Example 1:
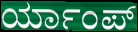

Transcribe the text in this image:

ರ್ಯಾಂಪ್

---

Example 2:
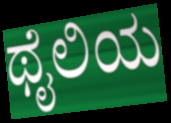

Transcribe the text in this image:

ಥೈಲಿಯ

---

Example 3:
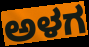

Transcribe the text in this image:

ಅಳಗ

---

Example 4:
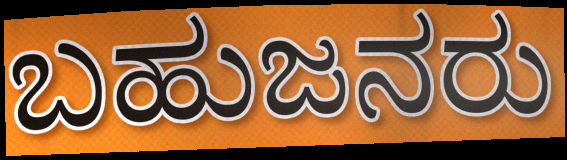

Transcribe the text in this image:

ಬಹುಜನರು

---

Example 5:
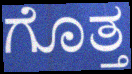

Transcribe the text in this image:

ಗೊತ್ತ